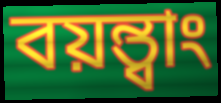
বয়ন্ত্বাং